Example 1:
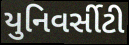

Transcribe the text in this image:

યુનિવર્સીટી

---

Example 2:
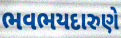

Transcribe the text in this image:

ભવભયદારુણે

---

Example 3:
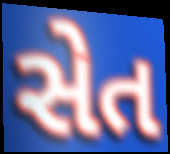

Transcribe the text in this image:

સેત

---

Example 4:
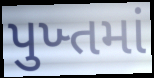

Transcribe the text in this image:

પુખ્તમાં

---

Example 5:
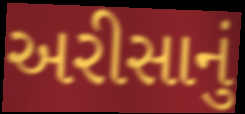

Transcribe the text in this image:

અરીસાનું